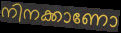
നിനക്കാണോ